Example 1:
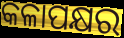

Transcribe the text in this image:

କଳାପକ୍ଷର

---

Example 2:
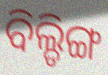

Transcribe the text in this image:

ବିଲ୍ଡିଙ୍ଗ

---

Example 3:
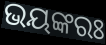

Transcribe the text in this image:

ଭୟଙ୍କରଃ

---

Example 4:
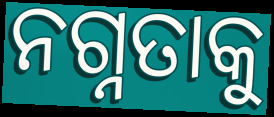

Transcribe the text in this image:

ନଗ୍ନତାକୁ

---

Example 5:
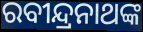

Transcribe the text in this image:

ରବୀନ୍ଦ୍ରନାଥଙ୍କ